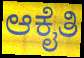
ಆಕೈತಿ